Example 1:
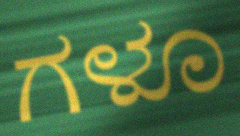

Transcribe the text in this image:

ಗಳೂ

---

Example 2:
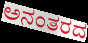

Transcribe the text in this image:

ಅನಂತರದ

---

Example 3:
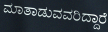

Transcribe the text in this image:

ಮಾತಾಡುವವರಿದ್ದಾರೆ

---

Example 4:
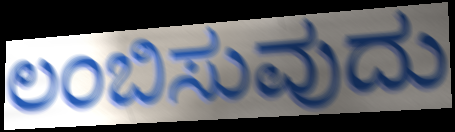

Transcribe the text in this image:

ಲಂಬಿಸುವುದು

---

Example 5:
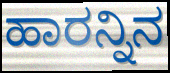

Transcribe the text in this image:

ಹಾರನ್ನಿನ